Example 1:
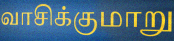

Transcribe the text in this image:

வாசிக்குமாறு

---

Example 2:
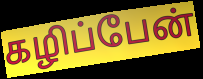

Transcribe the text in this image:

கழிப்பேன்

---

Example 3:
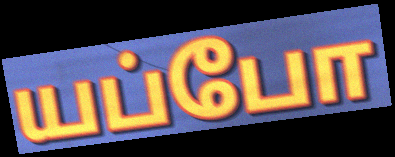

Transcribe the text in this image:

யப்போ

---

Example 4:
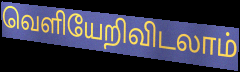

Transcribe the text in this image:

வெளியேறிவிடலாம்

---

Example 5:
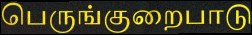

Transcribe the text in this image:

பெருங்குறைபாடு